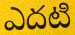
ఎదటి